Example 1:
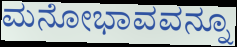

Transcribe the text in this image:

ಮನೋಭಾವವನ್ನೂ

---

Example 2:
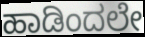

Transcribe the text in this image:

ಹಾಡಿಂದಲೇ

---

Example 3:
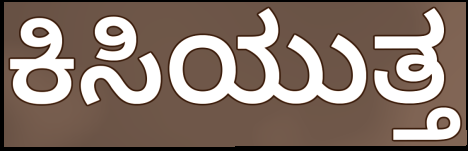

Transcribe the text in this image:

ಕಿಸಿಯುತ್ತ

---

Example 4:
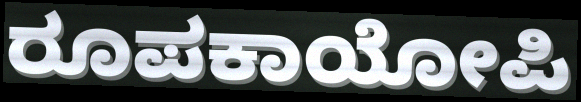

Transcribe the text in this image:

ರೂಪಕಾಯೋಪಿ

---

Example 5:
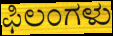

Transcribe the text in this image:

ಫಿಲಂಗಳು